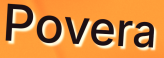
Povera